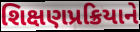
શિક્ષણપ્રક્રિયાને